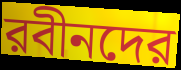
রবীনদের